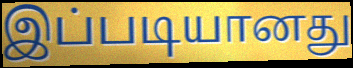
இப்படியானது